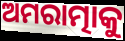
ଅମରାତ୍ମାକୁ